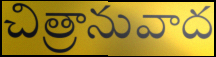
చిత్రానువాద